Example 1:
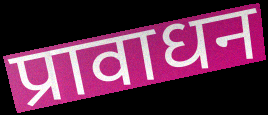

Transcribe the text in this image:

प्रावाधन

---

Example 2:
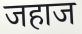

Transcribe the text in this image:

जहाज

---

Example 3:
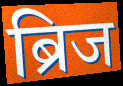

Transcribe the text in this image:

ब्रिज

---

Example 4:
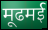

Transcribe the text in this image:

मूढमई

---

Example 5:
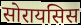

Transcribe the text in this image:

सोरायसिस